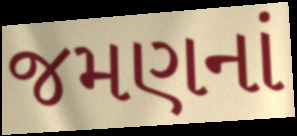
જમણનાં